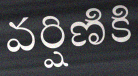
వర్షిణికి